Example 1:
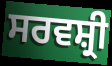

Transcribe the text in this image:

ਸਰਵਸ਼੍ਰੀ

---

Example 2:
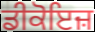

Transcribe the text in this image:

ਡੀਕੋਇਜ਼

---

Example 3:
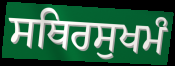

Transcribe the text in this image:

ਸਥਿਰਸੁਖਮੰ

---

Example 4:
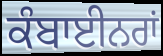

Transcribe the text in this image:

ਕੰਬਾਈਨਰਾਂ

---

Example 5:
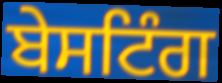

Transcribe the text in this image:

ਬੇਸਟਿੰਗ